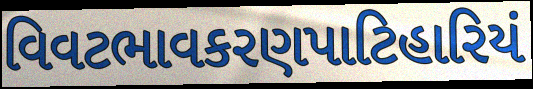
વિવટભાવકરણપાટિહારિયં